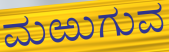
ಮಱುಗುವ